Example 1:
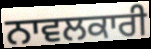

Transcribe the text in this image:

ਨਾਵਲਕਾਰੀ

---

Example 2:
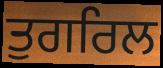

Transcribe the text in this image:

ਤੁਗਰਿਲ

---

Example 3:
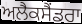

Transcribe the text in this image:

ਅਲੈਕਸੈਂਡਰਾ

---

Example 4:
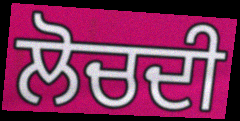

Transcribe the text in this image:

ਲੋਚਦੀ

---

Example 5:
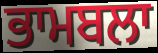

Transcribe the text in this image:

ਭਾਮਬਲਾ